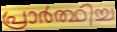
പ്രാർത്ഥിച്ച